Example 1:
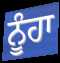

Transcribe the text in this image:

ਨੂੰਹਾ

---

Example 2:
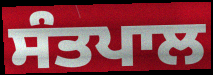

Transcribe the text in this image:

ਸੰਤਪਾਲ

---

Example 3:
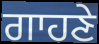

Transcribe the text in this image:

ਗਾਹਣੇ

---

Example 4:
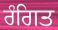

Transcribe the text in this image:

ਰੰਗਿਤ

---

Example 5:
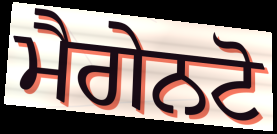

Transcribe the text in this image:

ਮੈਗੇਨਟੋ